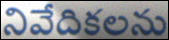
నివేదికలను